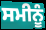
ਸਮੀਨੂੰ